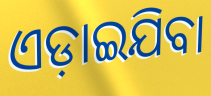
ଏଡ଼ାଇଯିବା